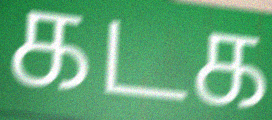
கடக